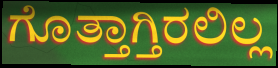
ಗೊತ್ತಾಗ್ತಿರಲಿಲ್ಲ